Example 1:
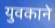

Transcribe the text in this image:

युवकाने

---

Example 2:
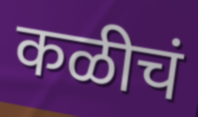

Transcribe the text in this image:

कळीचं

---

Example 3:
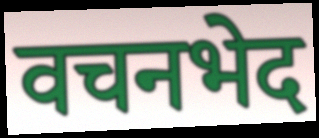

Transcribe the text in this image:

वचनभेद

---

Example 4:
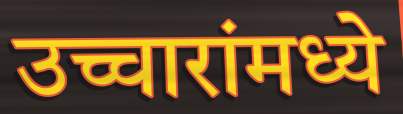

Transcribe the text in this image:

उच्चारांमध्ये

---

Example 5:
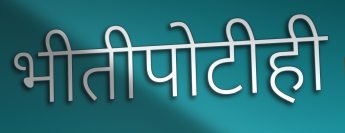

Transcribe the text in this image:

भीतीपोटीही